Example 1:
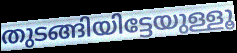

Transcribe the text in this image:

തുടങ്ങിയിട്ടേയുള്ളൂ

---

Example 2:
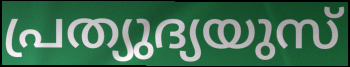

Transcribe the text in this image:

പ്രത്യുദ്യയുസ്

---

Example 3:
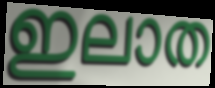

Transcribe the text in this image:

ഇലാത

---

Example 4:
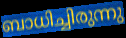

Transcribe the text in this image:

ബാധിച്ചിരുന്നു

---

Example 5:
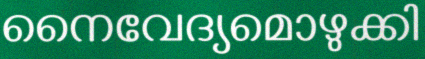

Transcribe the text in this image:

നൈവേദ്യമൊഴുക്കി